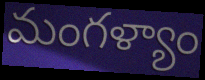
మంగళ్యాం